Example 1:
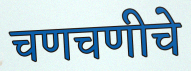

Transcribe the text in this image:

चणचणीचे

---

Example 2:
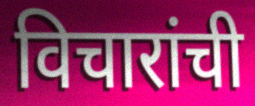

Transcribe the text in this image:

विचारांची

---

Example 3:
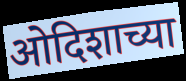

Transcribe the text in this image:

ओदिशाच्या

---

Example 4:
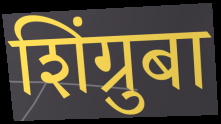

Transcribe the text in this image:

शिंग्रुबा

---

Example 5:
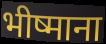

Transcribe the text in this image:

भीष्माना